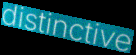
distinctive